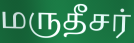
மருதீசர்